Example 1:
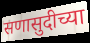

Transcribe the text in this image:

सणासुदीच्या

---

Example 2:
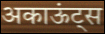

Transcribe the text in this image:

अकाऊंट्स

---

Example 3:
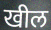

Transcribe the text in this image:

खील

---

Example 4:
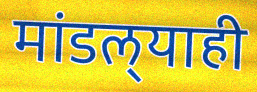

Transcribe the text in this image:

मांडल्याही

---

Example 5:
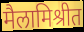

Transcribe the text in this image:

मैलामिश्रीत